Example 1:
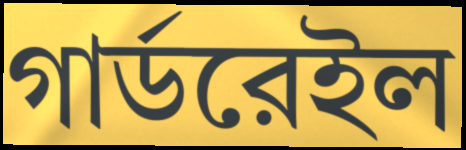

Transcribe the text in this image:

গার্ডরেইল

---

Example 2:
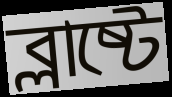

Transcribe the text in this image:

ব্লাষ্টে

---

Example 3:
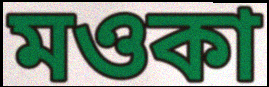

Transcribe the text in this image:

মওকা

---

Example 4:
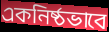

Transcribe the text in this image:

একনিষ্ঠভাবে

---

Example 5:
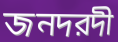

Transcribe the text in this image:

জনদরদী